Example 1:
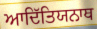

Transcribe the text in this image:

ਆਦਿੱਤਿਯਨਾਥ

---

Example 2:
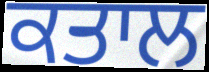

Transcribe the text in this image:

ਕਤਾਲ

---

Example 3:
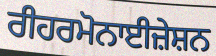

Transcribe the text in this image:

ਰੀਹਰਮੋਨਾਈਜ਼ੇਸ਼ਨ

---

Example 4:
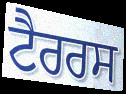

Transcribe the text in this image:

ਟੈਰਰਸ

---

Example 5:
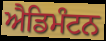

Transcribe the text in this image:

ਐਡਿਮੰਟਨ